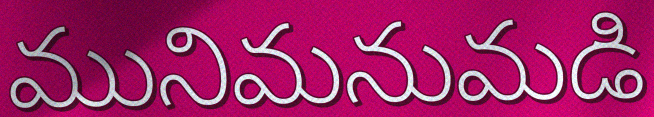
మునిమనుమడి